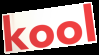
kool